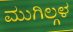
ಮುಗಿಲ್ಗಳ